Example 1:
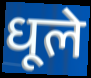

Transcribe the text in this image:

धूले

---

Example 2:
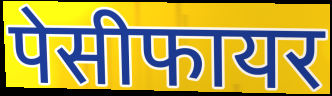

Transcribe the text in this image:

पेसीफायर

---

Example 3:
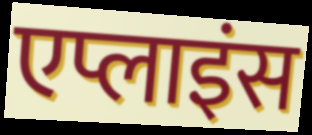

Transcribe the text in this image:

एप्लाइंस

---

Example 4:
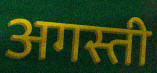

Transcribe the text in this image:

अगस्ती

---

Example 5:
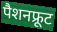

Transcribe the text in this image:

पैशनफ्रूट